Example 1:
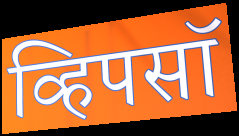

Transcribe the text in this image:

व्हिपसॉ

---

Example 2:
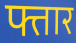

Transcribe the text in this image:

फ्तार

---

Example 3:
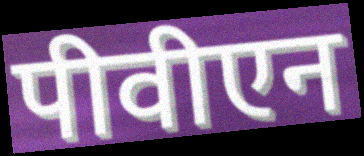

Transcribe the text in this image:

पीवीएन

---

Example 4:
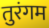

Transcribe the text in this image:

तुरंगम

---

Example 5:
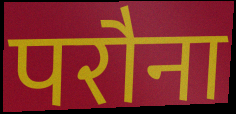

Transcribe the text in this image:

परौना